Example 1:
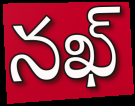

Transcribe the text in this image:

నఖ్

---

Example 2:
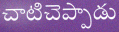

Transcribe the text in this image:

చాటిచెప్పాడు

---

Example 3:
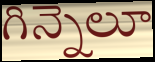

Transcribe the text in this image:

గిన్నెలూ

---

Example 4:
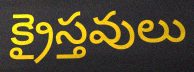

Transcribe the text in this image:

క్రైస్తవులు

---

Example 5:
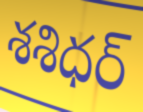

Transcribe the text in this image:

శశిధర్